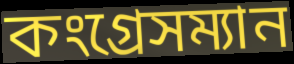
কংগ্রেসম্যান